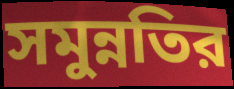
সমুন্নতির